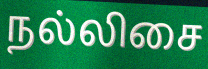
நல்லிசை